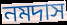
নমদাস